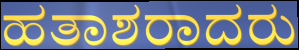
ಹತಾಶರಾದರು